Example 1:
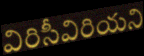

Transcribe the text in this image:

విరిసీవిరియని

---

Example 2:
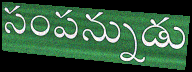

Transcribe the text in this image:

సంపన్నుడు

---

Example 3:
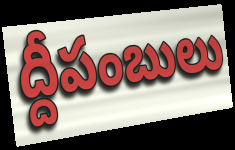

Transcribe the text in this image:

ద్దీపంబులు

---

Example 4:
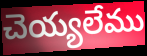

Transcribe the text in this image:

చెయ్యలేము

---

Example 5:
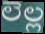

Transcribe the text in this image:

లెల్ల